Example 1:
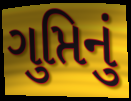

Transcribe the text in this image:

ગુપ્તિનું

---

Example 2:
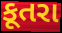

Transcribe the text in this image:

કૂતરા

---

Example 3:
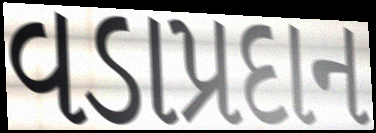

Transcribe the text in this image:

વડાપ્રદાન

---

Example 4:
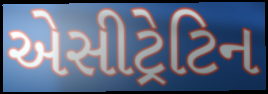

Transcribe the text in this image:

એસીટ્રેટિન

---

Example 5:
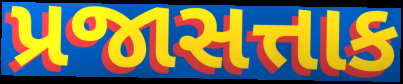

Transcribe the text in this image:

પ્રજાસત્તાક